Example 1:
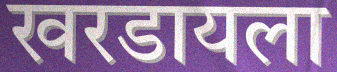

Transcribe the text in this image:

खरडायला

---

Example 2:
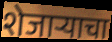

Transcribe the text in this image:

शेजार्‍याचा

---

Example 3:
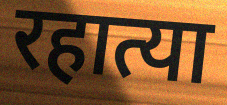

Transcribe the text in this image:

रहात्या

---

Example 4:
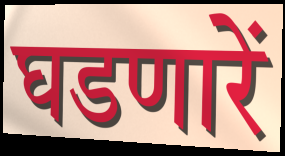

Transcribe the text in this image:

घडणारें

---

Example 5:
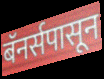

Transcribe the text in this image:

बॅनर्सपासून